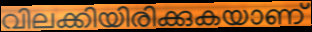
വിലക്കിയിരിക്കുകയാണ്